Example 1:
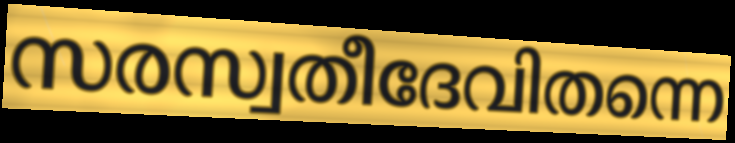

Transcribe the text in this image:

സരസ്വതീദേവിതന്നെ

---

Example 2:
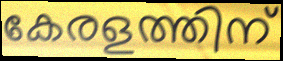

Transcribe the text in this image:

കേരളത്തിന്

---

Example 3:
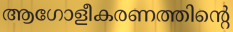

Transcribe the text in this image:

ആഗോളീകരണത്തിന്റെ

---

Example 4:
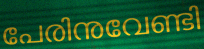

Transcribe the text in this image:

പേരിനുവേണ്ടി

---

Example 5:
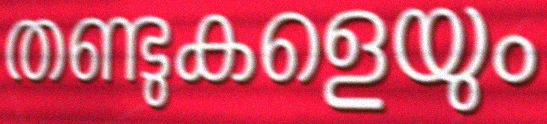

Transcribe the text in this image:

തണ്ടുകളെയും